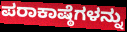
ಪರಾಕಾಷ್ಠೆಗಳನ್ನು